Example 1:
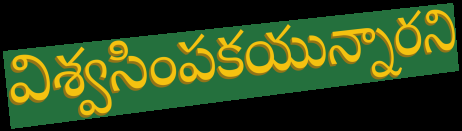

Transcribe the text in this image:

విశ్వసింపకయున్నారని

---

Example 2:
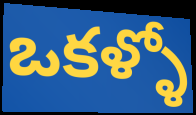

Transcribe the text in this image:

ఒకళ్ళో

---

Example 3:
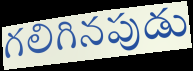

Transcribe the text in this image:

గలిగినపుడు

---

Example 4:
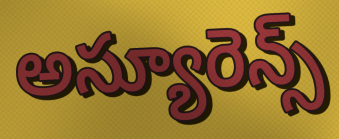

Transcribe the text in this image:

అస్యూరెన్స్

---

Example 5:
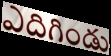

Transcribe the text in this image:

ఎదిగిండు